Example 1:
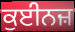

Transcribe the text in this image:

ਕੁਈਨਜ਼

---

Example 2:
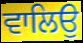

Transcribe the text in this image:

ਵਾਲਿਉ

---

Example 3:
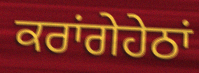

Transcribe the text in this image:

ਕਰਾਂਗੇਹੇਠਾਂ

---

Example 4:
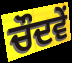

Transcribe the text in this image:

ਚੌਦਵੇਂ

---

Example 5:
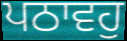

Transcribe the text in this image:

ਪਠਾਵਹੁ